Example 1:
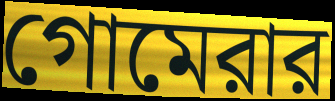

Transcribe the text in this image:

গোমেরার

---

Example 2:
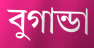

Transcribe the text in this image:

বুগান্ডা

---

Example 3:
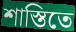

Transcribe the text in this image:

শাস্তিতে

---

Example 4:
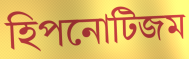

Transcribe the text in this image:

হিপনোটিজম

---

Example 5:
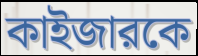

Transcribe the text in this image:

কাইজারকে